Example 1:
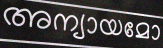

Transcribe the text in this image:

അന്യായമോ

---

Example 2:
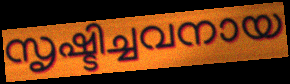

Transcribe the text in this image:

സൃഷ്ടിച്ചവനായ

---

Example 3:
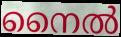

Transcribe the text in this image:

നൈൽ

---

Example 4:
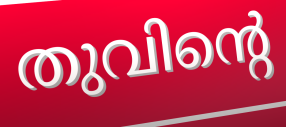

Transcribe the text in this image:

തുവിന്റെ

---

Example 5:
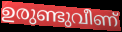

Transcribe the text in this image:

ഉരുണ്ടുവീണ്